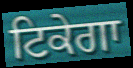
ਟਿਕੇਗਾ